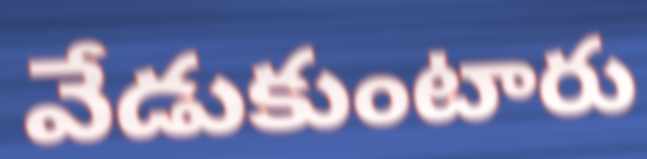
వేడుకుంటారు